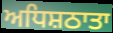
ਅਧਿਸ਼ਠਾਤਾ